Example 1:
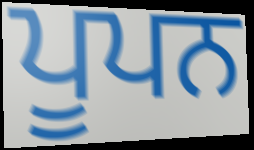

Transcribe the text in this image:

ਪੂਪਨ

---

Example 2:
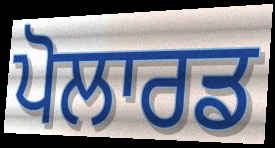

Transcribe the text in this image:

ਪੋਲਾਰਡ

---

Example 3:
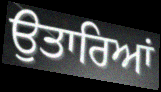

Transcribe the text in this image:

ਉਤਾਰਿਆਂ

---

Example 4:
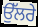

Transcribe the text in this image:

ਉੱਲਰੇ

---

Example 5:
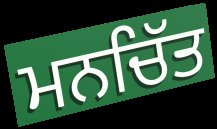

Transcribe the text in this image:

ਮਨਚਿੱਤ